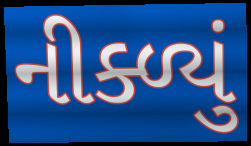
નીક્ળ્યું